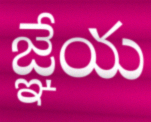
జ్ఞేయ